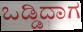
ಒಡ್ಡಿದಾಗ